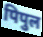
पिपुल